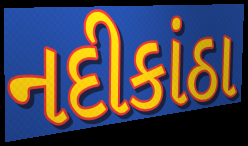
નદીકાંઠા